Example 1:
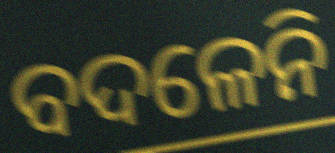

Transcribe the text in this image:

ବଦଳେନି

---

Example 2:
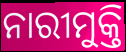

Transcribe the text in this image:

ନାରୀମୁକ୍ତି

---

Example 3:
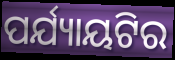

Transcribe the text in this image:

ପର୍ଯ୍ୟାୟଟିର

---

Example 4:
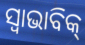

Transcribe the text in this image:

ସ୍ଵାଭାବିକ୍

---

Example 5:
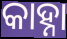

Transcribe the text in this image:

କାହ୍ନା